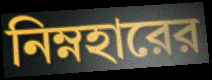
নিম্নহারের